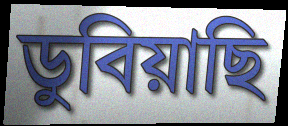
ডুবিয়াছি